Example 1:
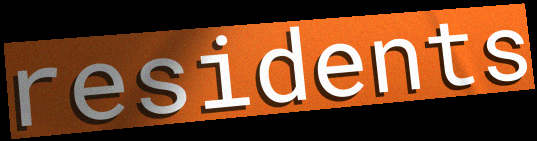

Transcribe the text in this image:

residents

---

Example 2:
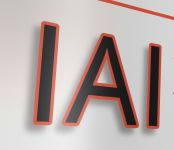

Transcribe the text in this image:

IAI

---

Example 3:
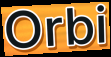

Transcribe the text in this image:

Orbi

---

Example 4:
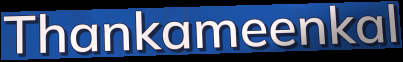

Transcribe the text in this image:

Thankameenkal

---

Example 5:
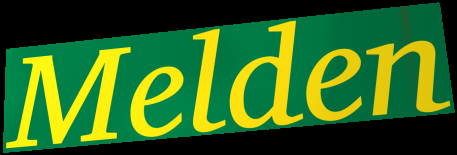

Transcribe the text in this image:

Melden